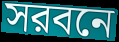
সরবনে